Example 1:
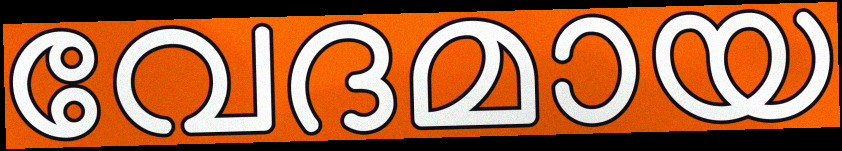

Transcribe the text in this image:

വേദമായ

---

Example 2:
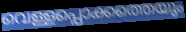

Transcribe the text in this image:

വെള്ളപ്പൊക്കത്തെയും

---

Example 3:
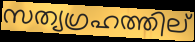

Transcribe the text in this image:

സത്യഗ്രഹത്തില്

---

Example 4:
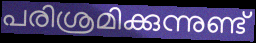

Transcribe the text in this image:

പരിശ്രമിക്കുന്നുണ്ട്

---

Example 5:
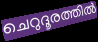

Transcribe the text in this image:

ചെറുദൂരത്തിൽ